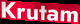
Krutam